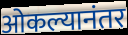
ओकल्यानंतर